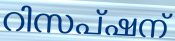
റിസപ്ഷന്